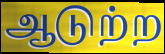
ஆடுற்ற